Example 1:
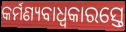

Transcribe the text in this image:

କର୍ମଣ୍ୟବାଧ୍ୱକାରସ୍ତେ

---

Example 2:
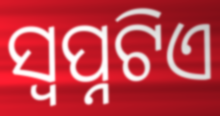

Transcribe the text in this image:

ସ୍ବପ୍ନଟିଏ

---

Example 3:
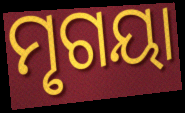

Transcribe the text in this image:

ମୃଗୟା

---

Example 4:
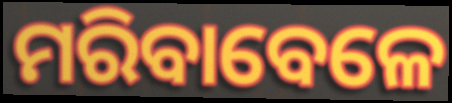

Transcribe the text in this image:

ମରିବାବେଳେ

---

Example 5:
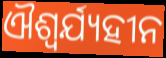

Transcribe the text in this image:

ଐଶ୍ଵର୍ଯ୍ୟହୀନ